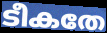
ടീകതേ